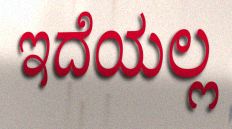
ಇದೆಯಲ್ಲ